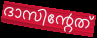
ദാസിന്റേത്